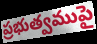
ప్రభుత్వముపై